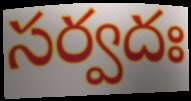
సర్వదః